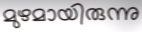
മുഴമായിരുന്നു